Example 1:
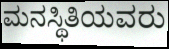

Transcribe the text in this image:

ಮನಸ್ಥಿತಿಯವರು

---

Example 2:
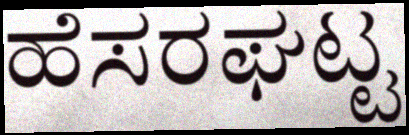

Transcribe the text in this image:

ಹೆಸರಘಟ್ಟ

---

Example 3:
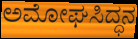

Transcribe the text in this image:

ಅಮೋಘಸಿದ್ಧನ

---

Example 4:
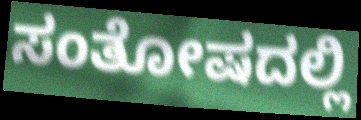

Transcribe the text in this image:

ಸಂತೋಷದಲ್ಲಿ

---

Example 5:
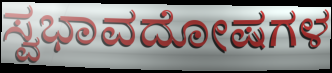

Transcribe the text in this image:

ಸ್ವಭಾವದೋಷಗಳ